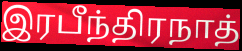
இரபீந்திரநாத்